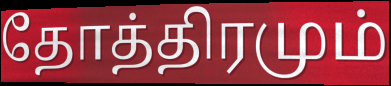
தோத்திரமும்